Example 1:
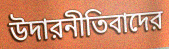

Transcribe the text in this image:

উদারনীতিবাদের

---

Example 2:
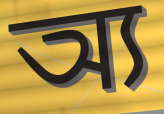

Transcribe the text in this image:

অ্য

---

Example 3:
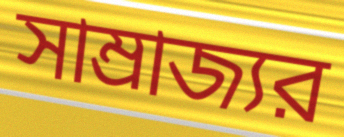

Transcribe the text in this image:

সাম্রাজ্যর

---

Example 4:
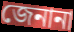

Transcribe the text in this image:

জেনানা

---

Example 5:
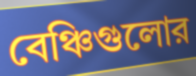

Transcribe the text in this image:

বেঞ্চিগুলোর